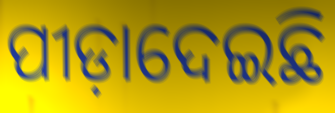
ପୀଡ଼ାଦେଇଛି